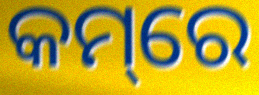
କମ୍‌ରେ